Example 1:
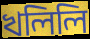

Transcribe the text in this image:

খলিলি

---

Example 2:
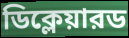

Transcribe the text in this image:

ডিক্লেয়ারড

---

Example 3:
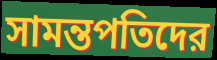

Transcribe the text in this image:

সামন্তপতিদের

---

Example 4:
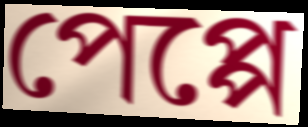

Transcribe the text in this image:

পেপ্পে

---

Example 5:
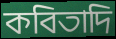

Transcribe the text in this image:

কবিতাদি